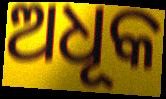
ଅଧୂକ